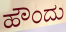
ಹೌಂದು